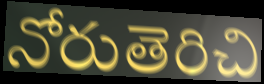
నోరుతెరిచి